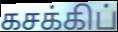
கசக்கிப்